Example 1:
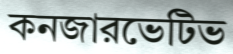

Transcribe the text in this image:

কনজারভেটিভ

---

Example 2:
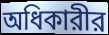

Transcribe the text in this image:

অধিকারীর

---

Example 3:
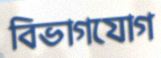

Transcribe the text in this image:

বিভাগযোগ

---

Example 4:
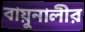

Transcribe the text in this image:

বায়ুনালীর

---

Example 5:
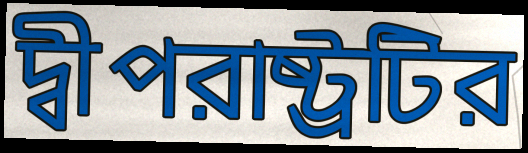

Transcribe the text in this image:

দ্বীপরাষ্ট্রটির